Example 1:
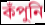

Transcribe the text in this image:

কঁপুনি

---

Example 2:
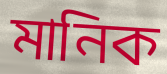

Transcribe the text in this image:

মানিক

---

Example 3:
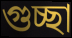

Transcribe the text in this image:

গুচ্ছা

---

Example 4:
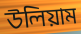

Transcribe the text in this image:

উলিয়াম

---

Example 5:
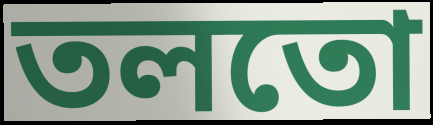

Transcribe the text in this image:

তলতো